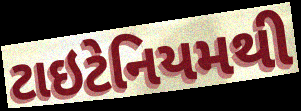
ટાઇટેનિયમથી